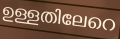
ഉള്ളതിലേറെ